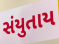
સંયુતાય